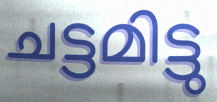
ചട്ടമിട്ടു